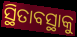
ସ୍ଥିତାବସ୍ଥାକୁ